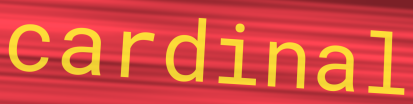
cardinal